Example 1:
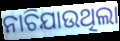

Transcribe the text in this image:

ନାଚିଯାଉଥିଲା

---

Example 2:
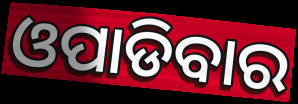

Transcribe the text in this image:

ଓପାଡିବାର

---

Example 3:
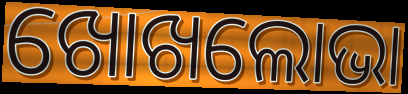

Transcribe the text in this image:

ଖୋଖଲୋଭା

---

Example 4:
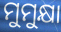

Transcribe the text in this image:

ମୁମୁକ୍ଷା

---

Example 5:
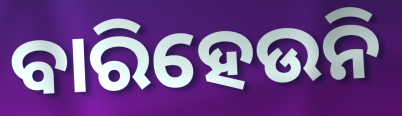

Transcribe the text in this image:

ବାରିହେଉନି